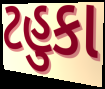
ટહુકા